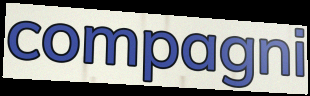
compagni